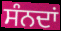
ਸੰਨਦਾਂ